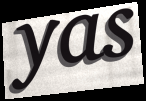
yas